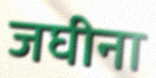
जघीना